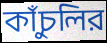
কাঁচুলির